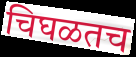
चिघळतच